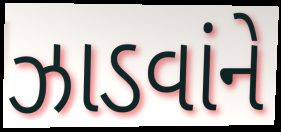
ઝાડવાંને